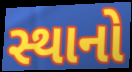
સ્થાનો